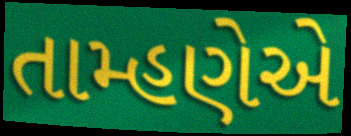
તામ્હણેએ